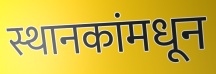
स्थानकांमधून